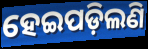
ହେଇପଡ଼ିଲଣି